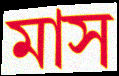
মাস